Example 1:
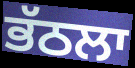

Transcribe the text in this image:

ਭੱਠਲਾ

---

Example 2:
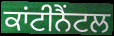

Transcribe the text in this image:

ਕਾਂਟੀਨੈਂਟਲ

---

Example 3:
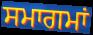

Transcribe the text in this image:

ਸਮਾਗਮਾਂ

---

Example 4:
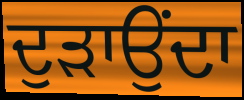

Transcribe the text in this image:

ਦੁੜਾਉਂਦਾ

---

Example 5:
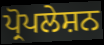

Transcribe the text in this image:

ਪ੍ਰੋਪਲੇਸ਼ਨ